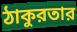
ঠাকুরতার